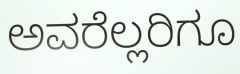
ಅವರೆಲ್ಲರಿಗೂ